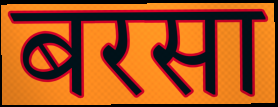
बरसा